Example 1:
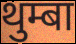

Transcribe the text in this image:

थुम्बा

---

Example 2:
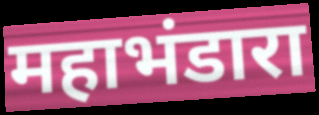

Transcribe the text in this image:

महाभंडारा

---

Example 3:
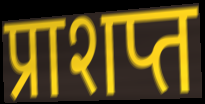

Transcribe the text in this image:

प्राशप्त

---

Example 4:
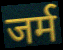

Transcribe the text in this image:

जर्म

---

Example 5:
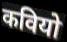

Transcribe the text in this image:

कवियो